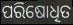
ପରିଷୋଧିତ